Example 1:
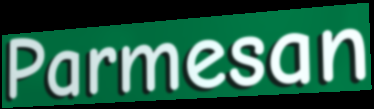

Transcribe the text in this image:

Parmesan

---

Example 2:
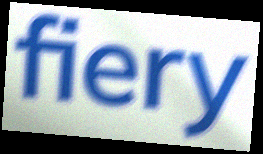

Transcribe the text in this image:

fiery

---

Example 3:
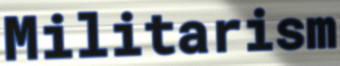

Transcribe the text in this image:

Militarism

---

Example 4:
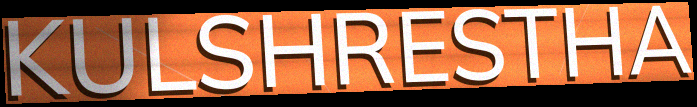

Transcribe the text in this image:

KULSHRESTHA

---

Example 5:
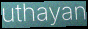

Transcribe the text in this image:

uthayan